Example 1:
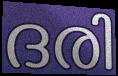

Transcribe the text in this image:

ദരി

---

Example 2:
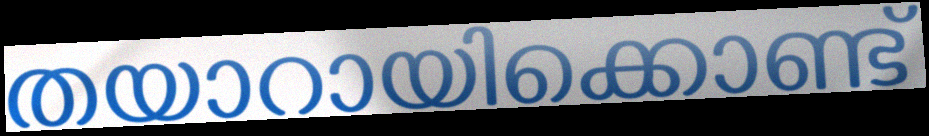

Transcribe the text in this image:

തയാറായിക്കൊണ്ട്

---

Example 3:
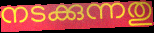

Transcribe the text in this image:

നടക്കുന്നതു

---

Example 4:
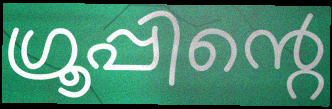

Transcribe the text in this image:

ഗ്രൂപ്പിന്റെ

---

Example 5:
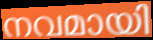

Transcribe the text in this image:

നവമായി